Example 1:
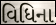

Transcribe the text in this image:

વિધિના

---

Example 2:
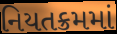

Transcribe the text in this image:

નિયતક્રમમાં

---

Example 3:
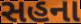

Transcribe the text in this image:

સહના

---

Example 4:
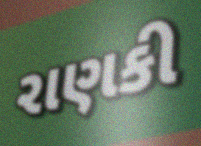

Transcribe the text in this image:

રાણકી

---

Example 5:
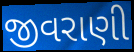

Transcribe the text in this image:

જીવરાણી